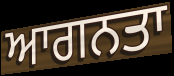
ਆਗਨਤਾ